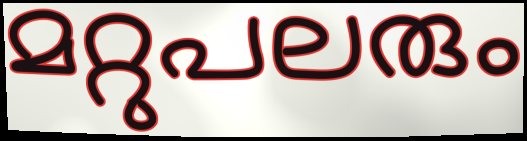
മറ്റുപലരും